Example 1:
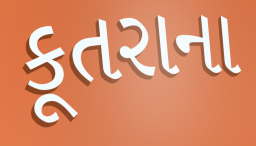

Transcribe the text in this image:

કૂતરાના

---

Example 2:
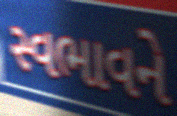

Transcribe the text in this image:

સ્વભાવને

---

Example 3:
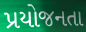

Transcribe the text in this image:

પ્રયોજનતા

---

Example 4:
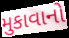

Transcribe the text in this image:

મુકાવાનો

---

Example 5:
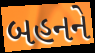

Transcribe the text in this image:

બહનને